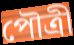
পৌত্রী